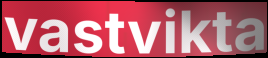
vastvikta